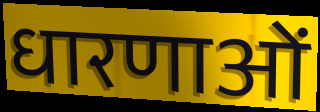
धारणाओं